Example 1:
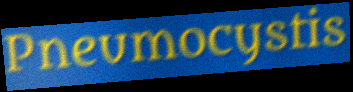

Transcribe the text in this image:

Pneumocystis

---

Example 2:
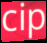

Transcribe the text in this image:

cip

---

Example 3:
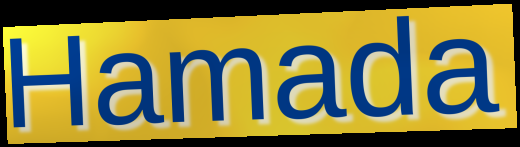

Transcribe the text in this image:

Hamada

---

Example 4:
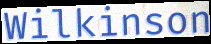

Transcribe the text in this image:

Wilkinson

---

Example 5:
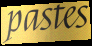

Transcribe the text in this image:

pastes